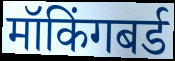
मॉकिंगबर्ड